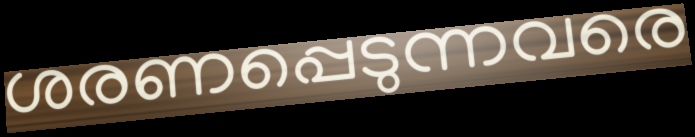
ശരണപ്പെടുന്നവരെ